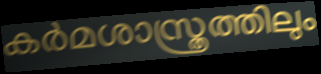
കർമശാസ്ത്രത്തിലും